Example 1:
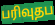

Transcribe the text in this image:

பரிவுதப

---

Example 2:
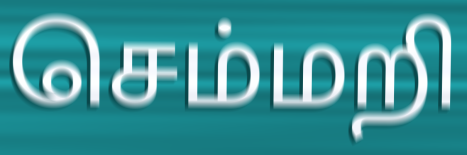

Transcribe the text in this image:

செம்மறி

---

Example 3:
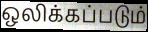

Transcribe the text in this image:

ஒலிக்கப்படும்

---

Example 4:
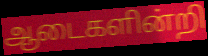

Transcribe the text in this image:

ஆடைகளின்றி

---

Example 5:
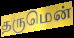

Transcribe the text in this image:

தருமென்